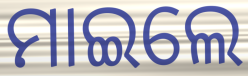
ମାଇଲେ